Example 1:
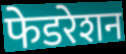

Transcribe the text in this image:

फेडरेशन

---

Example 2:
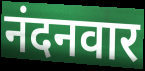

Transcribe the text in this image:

नंदनवार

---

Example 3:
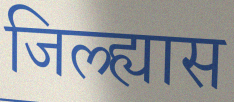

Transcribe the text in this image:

जिल्ह्यास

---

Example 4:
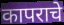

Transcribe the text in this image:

कापराचे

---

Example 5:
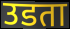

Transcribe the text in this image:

उडता